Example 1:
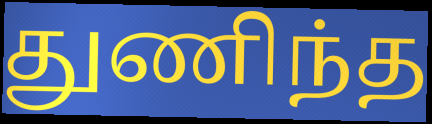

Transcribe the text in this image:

துணிந்த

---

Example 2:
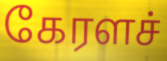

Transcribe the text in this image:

கேரளச்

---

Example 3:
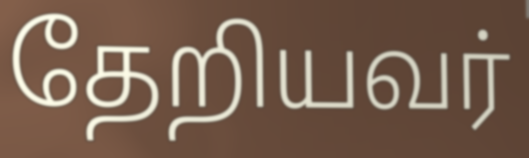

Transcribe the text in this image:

தேறியவர்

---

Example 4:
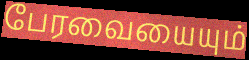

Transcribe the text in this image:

பேரவையையும்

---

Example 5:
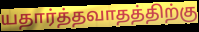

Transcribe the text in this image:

யதார்த்தவாதத்திற்கு